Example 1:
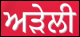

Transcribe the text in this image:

ਅੜੇਲੀ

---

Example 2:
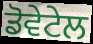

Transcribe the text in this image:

ਡੋਵੇਟੇਲ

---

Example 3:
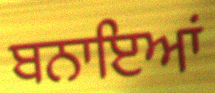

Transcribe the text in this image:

ਬਨਾਇਆਂ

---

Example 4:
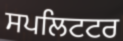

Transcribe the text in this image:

ਸਪਲਿਟਟਰ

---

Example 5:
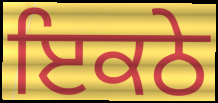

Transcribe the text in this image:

ਇਕਠੇ